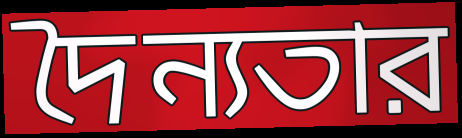
দৈন্যতার